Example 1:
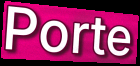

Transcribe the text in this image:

Porte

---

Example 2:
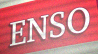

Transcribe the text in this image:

ENSO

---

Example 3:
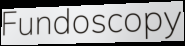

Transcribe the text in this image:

Fundoscopy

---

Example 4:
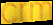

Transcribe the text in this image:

crm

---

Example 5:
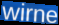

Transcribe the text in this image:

wirne